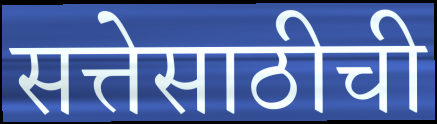
सत्तेसाठीची